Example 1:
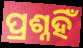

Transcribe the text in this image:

ପ୍ରଶ୍ନହିଁ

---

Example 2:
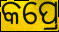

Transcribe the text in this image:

କପ୍ରେ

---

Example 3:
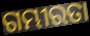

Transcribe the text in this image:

ଗମ୍ଭୀରତା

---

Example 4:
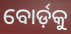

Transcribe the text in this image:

ବୋର୍ଡ଼କୁ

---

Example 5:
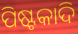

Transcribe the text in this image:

ପିଷ୍ଟକାଦି